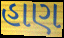
હાણ